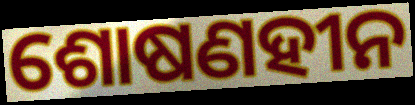
ଶୋଷଣହୀନ